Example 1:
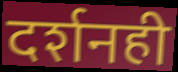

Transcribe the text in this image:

दर्शनही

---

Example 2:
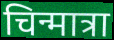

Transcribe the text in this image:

चिन्मात्रा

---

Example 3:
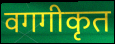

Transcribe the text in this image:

वगगीकृत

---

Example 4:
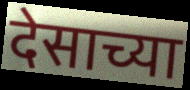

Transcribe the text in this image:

देसाच्या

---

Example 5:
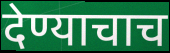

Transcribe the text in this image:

देण्याचाच